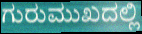
ಗುರುಮುಖದಲ್ಲಿ